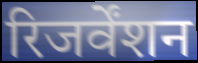
रिजर्वेंशन